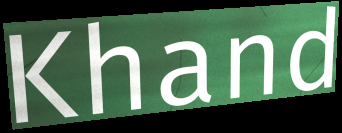
Khand